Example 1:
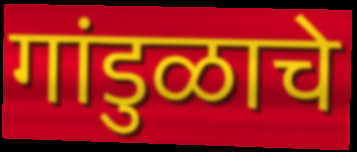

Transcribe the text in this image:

गांडुळाचे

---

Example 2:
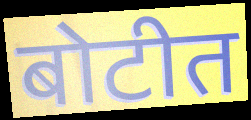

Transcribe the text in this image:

बोटीत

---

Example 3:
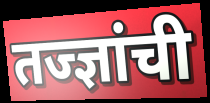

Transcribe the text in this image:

तज्ज्ञांची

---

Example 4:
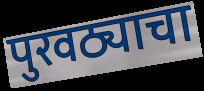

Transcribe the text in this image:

पुरवठ्याचा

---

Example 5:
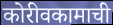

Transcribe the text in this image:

कोरीवकामाची